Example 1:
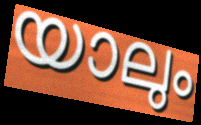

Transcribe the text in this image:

യാലും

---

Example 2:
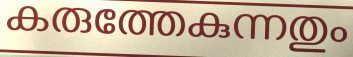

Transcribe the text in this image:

കരുത്തേകുന്നതും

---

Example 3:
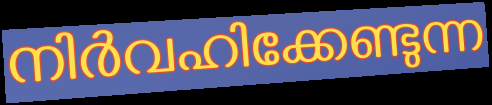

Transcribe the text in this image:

നിർവഹിക്കേണ്ടുന്ന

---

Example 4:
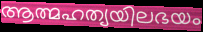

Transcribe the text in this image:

ആത്മഹത്യയിലഭയം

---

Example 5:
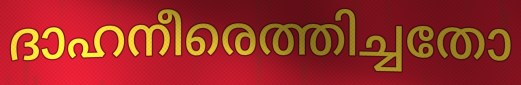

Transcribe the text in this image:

ദാഹനീരെത്തിച്ചതോ